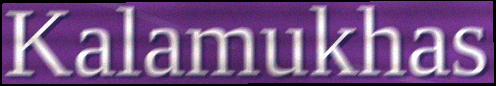
Kalamukhas